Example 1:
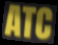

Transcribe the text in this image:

ATC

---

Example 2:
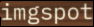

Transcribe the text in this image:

imgspot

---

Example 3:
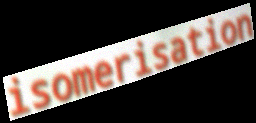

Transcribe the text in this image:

isomerisation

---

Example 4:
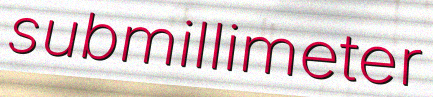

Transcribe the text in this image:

submillimeter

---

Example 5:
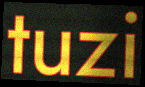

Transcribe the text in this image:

tuzi